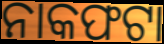
ନାକଫଟା